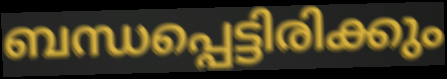
ബന്ധപ്പെട്ടിരിക്കും